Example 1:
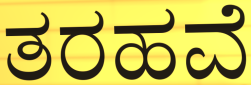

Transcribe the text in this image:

ತರಹವೆ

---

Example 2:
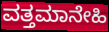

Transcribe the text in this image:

ವತ್ತಮಾನೇಹಿ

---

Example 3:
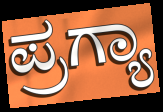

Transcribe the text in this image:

ಪ್ರಗ್ಯಾ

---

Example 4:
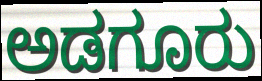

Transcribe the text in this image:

ಅಡಗೂರು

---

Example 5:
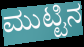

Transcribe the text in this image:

ಮುಟ್ಟಿನ